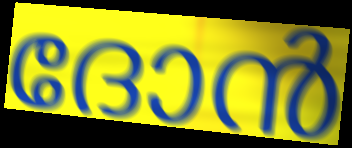
ദോൻ